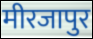
मीरजापुर